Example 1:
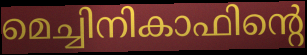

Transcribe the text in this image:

മെച്ചിനികാഫിന്റെ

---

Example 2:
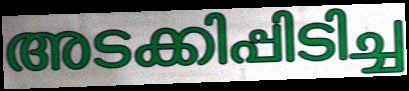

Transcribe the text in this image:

അടക്കിപ്പിടിച്ച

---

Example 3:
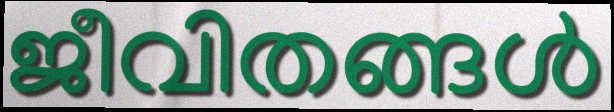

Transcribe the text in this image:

ജീവിതങ്ങൾ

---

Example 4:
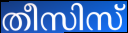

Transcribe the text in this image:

തീസിസ്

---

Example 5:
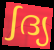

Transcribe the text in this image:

ഽദ്യ